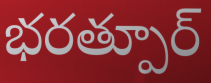
భరత్పూర్